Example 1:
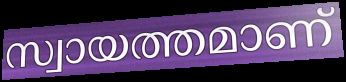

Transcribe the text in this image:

സ്വായത്തമാണ്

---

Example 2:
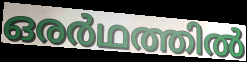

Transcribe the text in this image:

ഒരർഥത്തിൽ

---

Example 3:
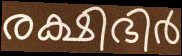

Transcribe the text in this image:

രക്ഷിഭിർ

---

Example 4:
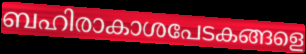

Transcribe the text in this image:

ബഹിരാകാശപേടകങ്ങളെ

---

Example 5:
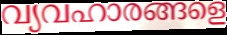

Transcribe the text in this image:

വ്യവഹാരങ്ങളെ